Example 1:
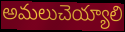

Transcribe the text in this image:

అమలుచెయ్యాలి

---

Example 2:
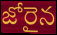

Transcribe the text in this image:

జోరైన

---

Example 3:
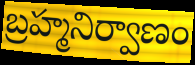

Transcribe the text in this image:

బ్రహ్మనిర్వాణం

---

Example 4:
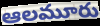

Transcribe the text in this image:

ఆలమూరు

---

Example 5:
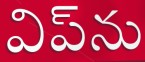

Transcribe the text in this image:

విప్‌ను